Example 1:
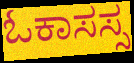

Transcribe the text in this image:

ಓಕಾಸಸ್ಸ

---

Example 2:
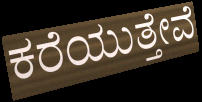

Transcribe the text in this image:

ಕರೆಯುತ್ತೇವೆ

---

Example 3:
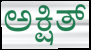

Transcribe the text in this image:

ಅಕ್ಷಿತ್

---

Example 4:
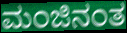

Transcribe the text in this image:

ಮಂಜಿನಂತ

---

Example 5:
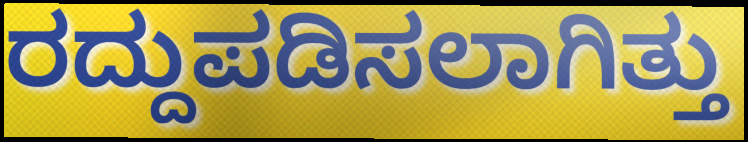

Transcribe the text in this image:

ರದ್ದುಪಡಿಸಲಾಗಿತ್ತು